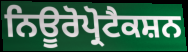
ਨਿਊਰੋਪ੍ਰੋਟੈਕਸ਼ਨ